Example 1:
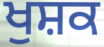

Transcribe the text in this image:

ਖੁਸ਼ਕ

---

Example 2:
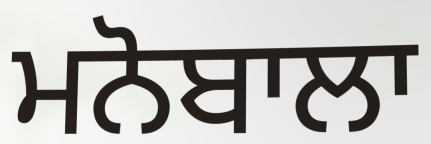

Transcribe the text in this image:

ਮਨੋਬਾਲਾ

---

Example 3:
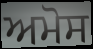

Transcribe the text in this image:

ਅਮੋਸ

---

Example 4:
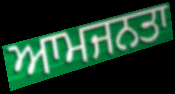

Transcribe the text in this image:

ਆਮਜਨਤਾ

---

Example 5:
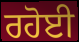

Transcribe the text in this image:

ਰਹੋਈ